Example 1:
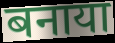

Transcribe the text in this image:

बनाया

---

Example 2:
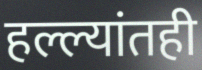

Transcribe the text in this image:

हल्ल्यांतही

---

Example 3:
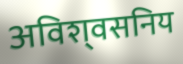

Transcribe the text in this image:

अविश्वसनिय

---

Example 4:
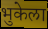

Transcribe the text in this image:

भुकेला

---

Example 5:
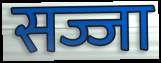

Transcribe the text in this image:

सज्जा